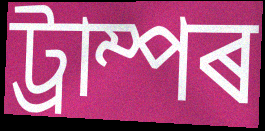
ট্ৰাম্পৰ